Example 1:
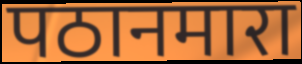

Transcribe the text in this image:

पठानमारा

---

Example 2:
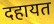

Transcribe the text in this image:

दहायत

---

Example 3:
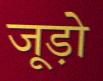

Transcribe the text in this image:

जूड़ो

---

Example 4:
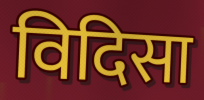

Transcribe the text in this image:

विदिसा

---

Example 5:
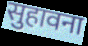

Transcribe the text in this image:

सुहावना